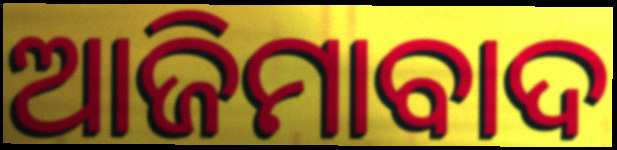
ଆଜିମାବାଦ